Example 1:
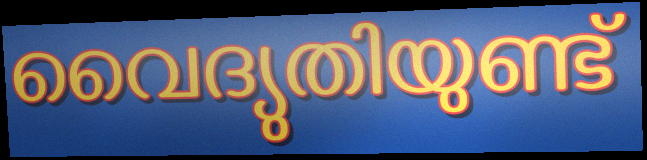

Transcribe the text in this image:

വൈദ്യുതിയുണ്ട്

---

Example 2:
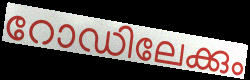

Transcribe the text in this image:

റോഡിലേക്കും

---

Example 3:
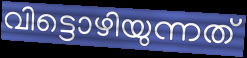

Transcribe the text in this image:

വിട്ടൊഴിയുന്നത്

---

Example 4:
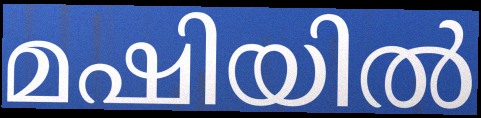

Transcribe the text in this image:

മഷിയിൽ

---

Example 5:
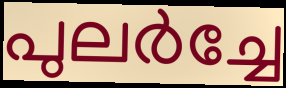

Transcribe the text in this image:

പുലർച്ചേ